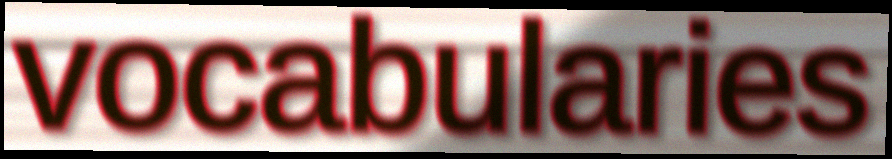
vocabularies